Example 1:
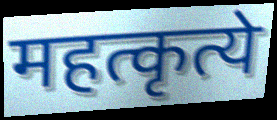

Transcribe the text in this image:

महत्कृत्ये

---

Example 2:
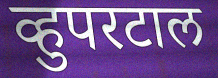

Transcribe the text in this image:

व्हुपरटाल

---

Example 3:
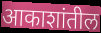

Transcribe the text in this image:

आकाशांतील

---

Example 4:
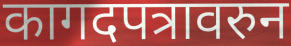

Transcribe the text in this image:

कागदपत्रावरुन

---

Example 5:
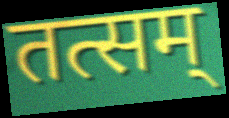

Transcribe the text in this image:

तत्सम्